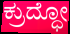
ಕ್ರುದ್ಧೋ